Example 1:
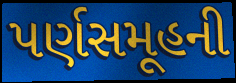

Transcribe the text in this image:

પર્ણસમૂહની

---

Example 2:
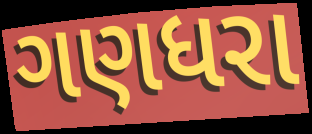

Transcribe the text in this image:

ગણધરા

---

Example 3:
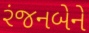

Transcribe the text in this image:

રંજનબેને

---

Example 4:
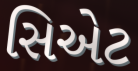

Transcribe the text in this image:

સિએટ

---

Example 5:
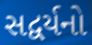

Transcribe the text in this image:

સદ્વર્યનો